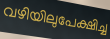
വഴിയിലുപേക്ഷിച്ച